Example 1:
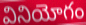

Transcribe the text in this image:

వినియోగం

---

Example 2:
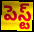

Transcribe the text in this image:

పెస్ట్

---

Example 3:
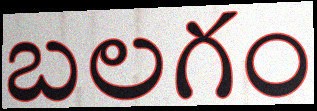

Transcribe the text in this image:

బలగం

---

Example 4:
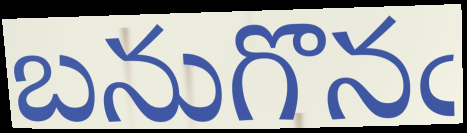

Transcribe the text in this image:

బనుగొనఁ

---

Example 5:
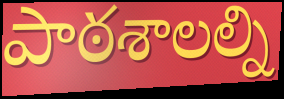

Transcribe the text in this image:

పాఠశాలల్ని